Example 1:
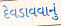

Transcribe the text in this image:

દેવડાવવાનું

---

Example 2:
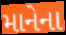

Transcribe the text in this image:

માનેના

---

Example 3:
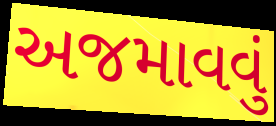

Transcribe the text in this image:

અજમાવવું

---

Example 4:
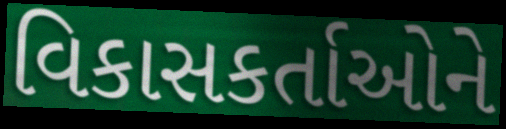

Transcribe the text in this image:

વિકાસકર્તાઓને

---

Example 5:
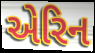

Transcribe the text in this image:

એરિન